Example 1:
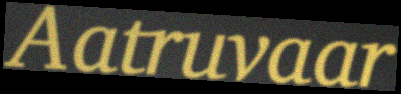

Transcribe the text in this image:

Aatruvaar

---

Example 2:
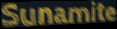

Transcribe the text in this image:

Sunamite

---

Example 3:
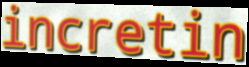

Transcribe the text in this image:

incretin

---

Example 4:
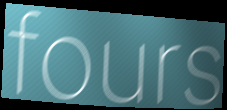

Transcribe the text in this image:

fours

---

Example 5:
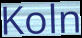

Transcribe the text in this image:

Koln